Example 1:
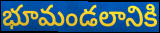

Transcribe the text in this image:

భూమండలానికి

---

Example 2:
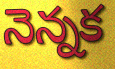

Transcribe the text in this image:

నెన్నక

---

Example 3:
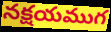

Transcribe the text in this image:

నక్షయముగ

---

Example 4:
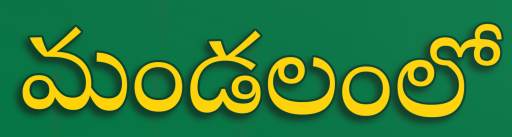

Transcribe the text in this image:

మండలంలో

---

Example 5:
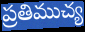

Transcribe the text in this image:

ప్రతిముచ్య